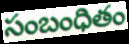
సంబంధితం